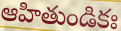
ఆహితుండికః